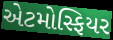
એટમોસ્ફિયર